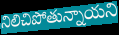
నిలిచిపోతున్నాయని